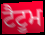
ਟੈਟੂਮ